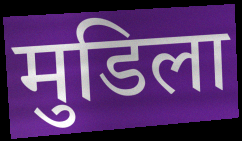
मुडिला